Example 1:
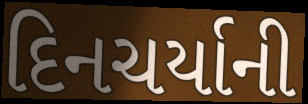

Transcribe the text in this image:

દિનચર્યાની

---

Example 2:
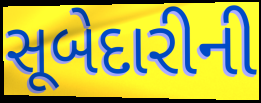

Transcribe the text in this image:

સૂબેદારીની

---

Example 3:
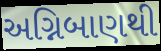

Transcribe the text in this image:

અગ્નિબાણથી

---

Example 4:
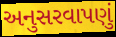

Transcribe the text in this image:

અનુસરવાપણું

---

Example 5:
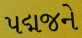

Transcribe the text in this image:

પદ્મજને